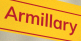
Armillary